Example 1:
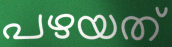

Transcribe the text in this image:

പഴയത്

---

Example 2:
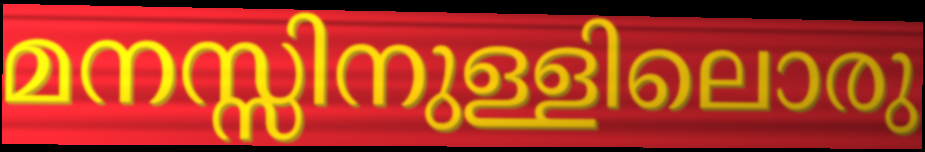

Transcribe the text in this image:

മനസ്സിനുള്ളിലൊരു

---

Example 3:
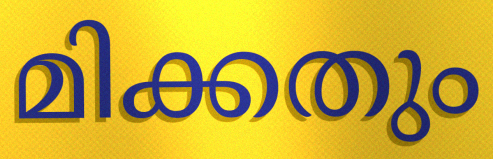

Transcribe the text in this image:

മിക്കതും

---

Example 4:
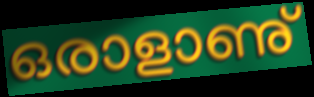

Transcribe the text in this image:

ഒരാളാണു്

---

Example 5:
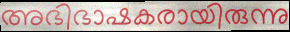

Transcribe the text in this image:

അഭിഭാഷകരായിരുന്നു